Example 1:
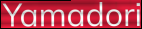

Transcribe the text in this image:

Yamadori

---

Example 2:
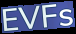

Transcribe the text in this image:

EVFs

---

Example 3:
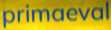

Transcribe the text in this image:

primaeval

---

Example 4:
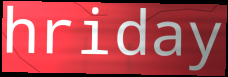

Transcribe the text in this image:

hriday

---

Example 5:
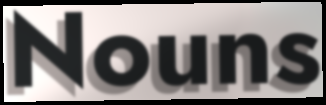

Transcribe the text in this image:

Nouns